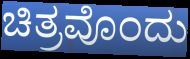
ಚಿತ್ರವೊಂದು